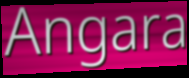
Angara